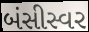
બંસીસ્વર